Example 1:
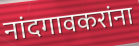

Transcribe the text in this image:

नांदगावकरांना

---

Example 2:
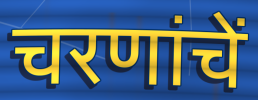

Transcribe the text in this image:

चरणांचें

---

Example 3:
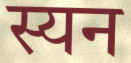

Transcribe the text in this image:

स्यन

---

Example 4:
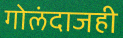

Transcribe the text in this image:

गोलंदाजही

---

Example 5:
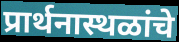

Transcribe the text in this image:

प्रार्थनास्थळांचे